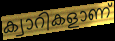
ക്വാറികളാണ്